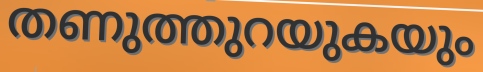
തണുത്തുറയുകയും